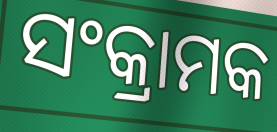
ସଂକ୍ରାମକ